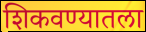
शिकवण्यातला